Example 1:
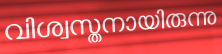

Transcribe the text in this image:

വിശ്വസ്തനായിരുന്നു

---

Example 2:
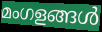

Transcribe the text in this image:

മംഗളങ്ങൾ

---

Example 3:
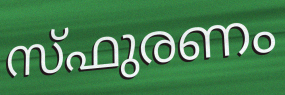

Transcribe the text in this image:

സ്ഫുരണം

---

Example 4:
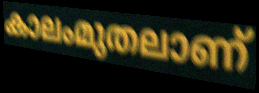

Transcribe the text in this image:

കാലംമുതലാണ്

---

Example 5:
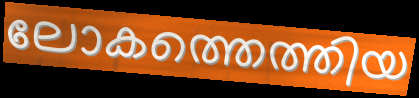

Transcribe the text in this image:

ലോകത്തെത്തിയ